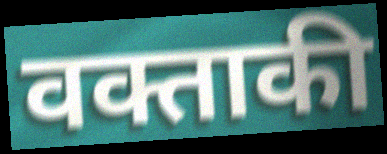
वक्ताकी